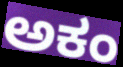
ಅಕಂ